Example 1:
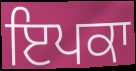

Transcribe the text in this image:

ਇਪਕਾ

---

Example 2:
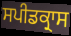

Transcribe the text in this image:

ਸਪੀਡਕ੍ਰਾਸ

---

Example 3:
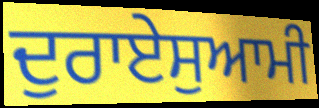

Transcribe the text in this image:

ਦੁਰਾਏਸੁਆਮੀ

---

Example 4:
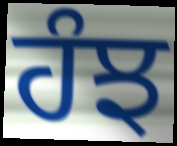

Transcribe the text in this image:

ਹੰਝ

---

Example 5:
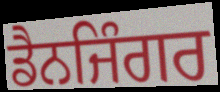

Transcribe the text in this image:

ਡੈਨਜਿੰਗਰ